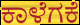
ಕಾಳೆಗಕೆ